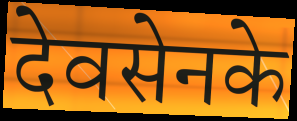
देवसेनके